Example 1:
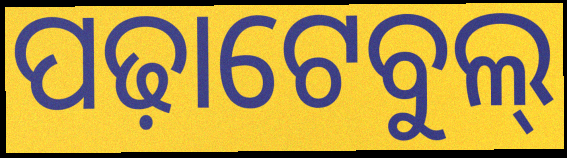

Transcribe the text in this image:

ପଢ଼ାଟେବୁଲ୍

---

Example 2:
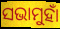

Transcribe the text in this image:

ସଭାମୁହାଁ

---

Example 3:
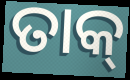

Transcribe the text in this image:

ତାକ୍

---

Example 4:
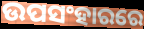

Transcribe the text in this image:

ଉପସଂହାରରେ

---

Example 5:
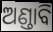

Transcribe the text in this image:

ଅଣ୍ଡାବି